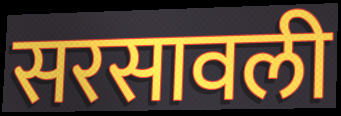
सरसावली